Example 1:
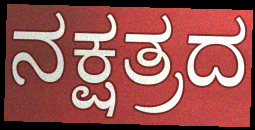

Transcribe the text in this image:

ನಕ್ಷತ್ರದ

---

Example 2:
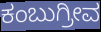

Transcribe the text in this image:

ಕಂಬುಗ್ರೀವ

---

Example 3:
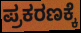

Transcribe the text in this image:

ಪ್ರಕರಣಕ್ಕೆ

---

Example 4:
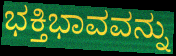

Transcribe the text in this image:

ಭಕ್ತಿಭಾವವನ್ನು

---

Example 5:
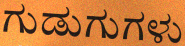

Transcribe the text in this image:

ಗುಡುಗುಗಳು